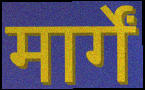
मार्गें